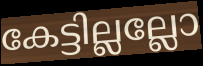
കേട്ടില്ലല്ലോ